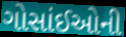
ગોસાંઈઓની